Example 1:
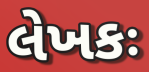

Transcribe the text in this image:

લેખકઃ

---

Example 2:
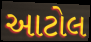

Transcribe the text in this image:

આટોલ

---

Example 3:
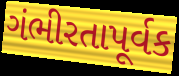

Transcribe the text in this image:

ગંભીરતાપૂર્વક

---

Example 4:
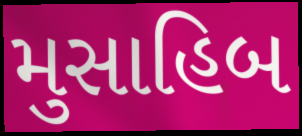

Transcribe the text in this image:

મુસાહિબ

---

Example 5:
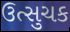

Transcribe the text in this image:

ઉત્સુચક